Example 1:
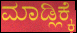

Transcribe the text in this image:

ಮಾಡ್ಲಿಕ್ಕೆ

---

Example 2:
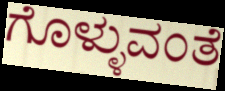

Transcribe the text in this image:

ಗೊಳ್ಳುವಂತೆ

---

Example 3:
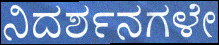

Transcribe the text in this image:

ನಿದರ್ಶನಗಳೇ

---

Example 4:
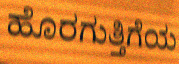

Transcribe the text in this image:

ಹೊರಗುತ್ತಿಗೆಯ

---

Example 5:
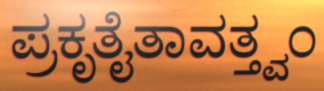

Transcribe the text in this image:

ಪ್ರಕೃತೈತಾವತ್ತ್ವಂ